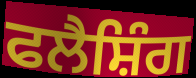
ਫਲੈਸ਼ਿੰਗ